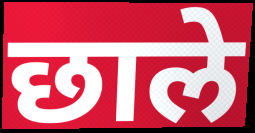
छाले